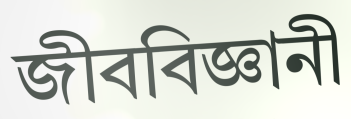
জীববিজ্ঞানী